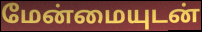
மேன்மையுடன்